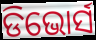
ଡିଭୋର୍ସ